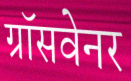
ग्रॉसवेनर